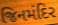
જિનમંદિર